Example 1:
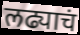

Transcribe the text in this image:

लढ्याचं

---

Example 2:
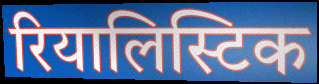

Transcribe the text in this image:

रियालिस्टिक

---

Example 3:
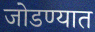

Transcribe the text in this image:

जोडण्यात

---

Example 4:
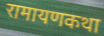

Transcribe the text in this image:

रामायणकथा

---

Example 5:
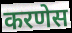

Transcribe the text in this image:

करणेस